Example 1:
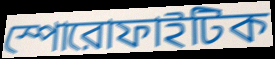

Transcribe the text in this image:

স্পোরোফাইটিক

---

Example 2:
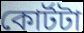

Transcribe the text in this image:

কোর্টটা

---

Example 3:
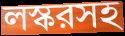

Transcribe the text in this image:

লস্করসহ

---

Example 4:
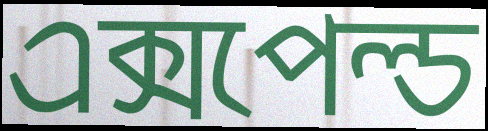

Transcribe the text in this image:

এক্সপেল্ড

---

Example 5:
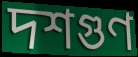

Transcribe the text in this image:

দশগুণ